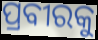
ପ୍ରବୀରକୁ